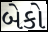
બેકો